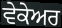
ਵੇਕੇਅਰ